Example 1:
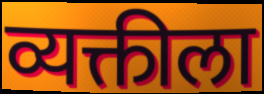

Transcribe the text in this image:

व्यक्तीला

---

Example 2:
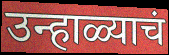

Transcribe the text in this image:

उन्हाळ्याचं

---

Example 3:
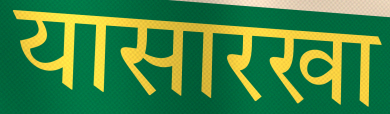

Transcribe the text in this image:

यासारखा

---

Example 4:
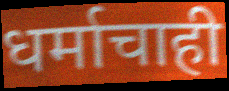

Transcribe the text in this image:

धर्माचाही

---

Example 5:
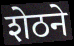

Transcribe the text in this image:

शेठने